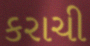
કરાચી